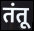
तंतू